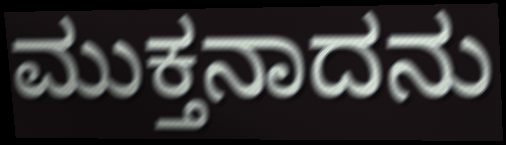
ಮುಕ್ತನಾದನು